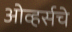
ओव्हर्सचे